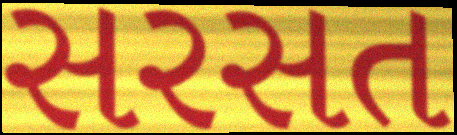
સરસત